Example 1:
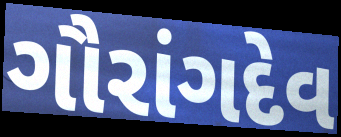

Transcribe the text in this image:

ગૌરાંગદેવ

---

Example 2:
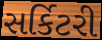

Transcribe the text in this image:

સર્કિટરી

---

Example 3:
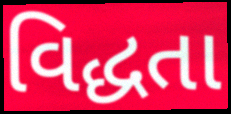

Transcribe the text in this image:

વિદ્ધતા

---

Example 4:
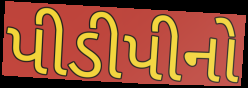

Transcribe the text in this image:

પીડીપીનો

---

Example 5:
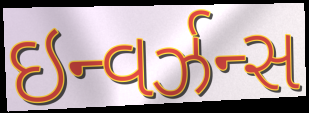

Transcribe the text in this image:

ઇન્વર્ઝન્સ